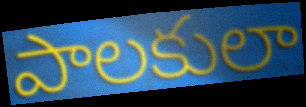
పాలకులా